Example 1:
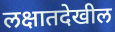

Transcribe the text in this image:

लक्षातदेखील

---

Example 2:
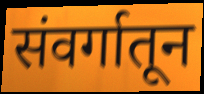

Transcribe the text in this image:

संवर्गातून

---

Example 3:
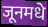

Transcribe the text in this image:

जूनमधे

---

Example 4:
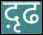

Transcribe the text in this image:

द़ृढ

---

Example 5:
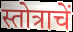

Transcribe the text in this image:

स्तोत्राचें